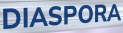
DIASPORA